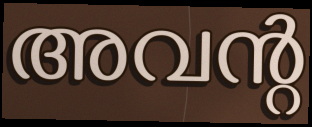
അവന്റ